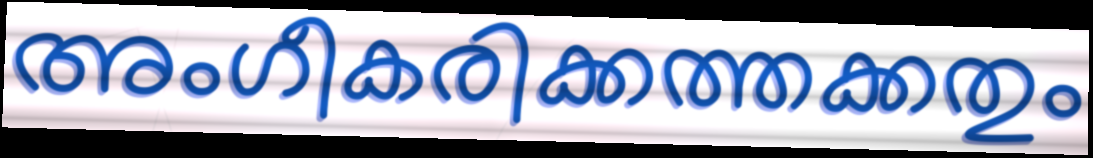
അംഗീകരിക്കത്തക്കതും